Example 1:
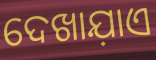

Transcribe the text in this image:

ଦେଖାଯ଼ାଏ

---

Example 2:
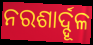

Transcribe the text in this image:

ନରଶାର୍ଦ୍ଦୂଳ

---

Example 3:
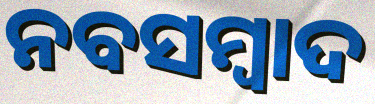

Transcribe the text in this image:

ନବସମ୍ବାଦ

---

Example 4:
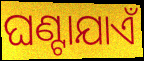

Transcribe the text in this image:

ଘଣ୍ଟାଯାଏଁ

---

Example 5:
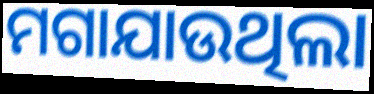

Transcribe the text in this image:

ମଗାଯାଉଥିଲା